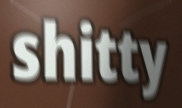
shitty